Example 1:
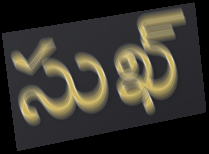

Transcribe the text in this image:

సుఖ్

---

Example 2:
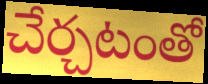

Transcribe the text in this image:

చేర్చటంతో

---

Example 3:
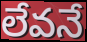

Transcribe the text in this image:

లేవనే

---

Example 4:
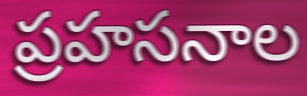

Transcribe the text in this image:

ప్రహసనాల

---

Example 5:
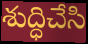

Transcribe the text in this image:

శుద్ధిచేసి